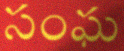
సంఘ